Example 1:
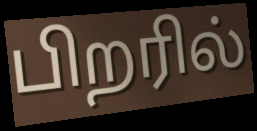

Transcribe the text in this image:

பிறரில்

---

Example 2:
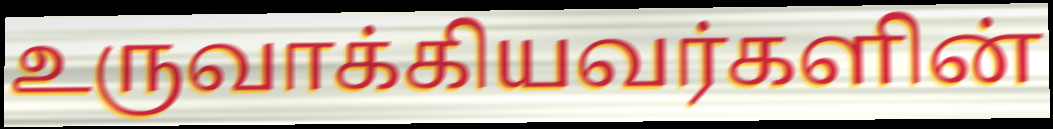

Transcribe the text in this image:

உருவாக்கியவர்களின்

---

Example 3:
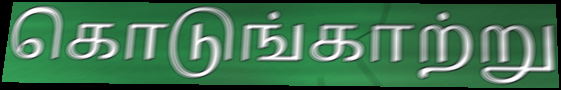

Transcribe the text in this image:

கொடுங்காற்று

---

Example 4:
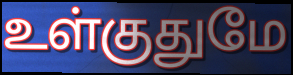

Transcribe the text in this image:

உள்குதுமே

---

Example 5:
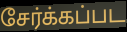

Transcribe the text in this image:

சேர்க்கப்பட